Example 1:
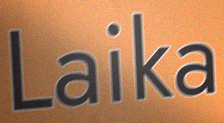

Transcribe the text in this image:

Laika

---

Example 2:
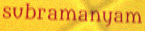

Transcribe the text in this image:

subramanyam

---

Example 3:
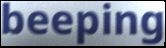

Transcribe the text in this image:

beeping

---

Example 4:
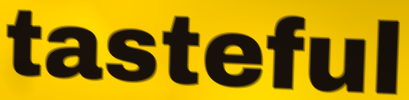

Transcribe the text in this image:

tasteful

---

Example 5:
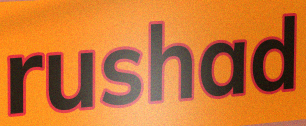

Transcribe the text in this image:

rushad